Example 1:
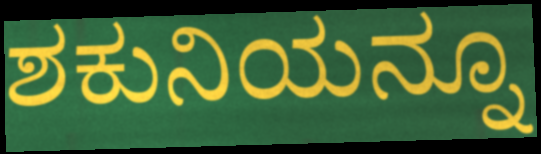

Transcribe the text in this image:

ಶಕುನಿಯನ್ನೂ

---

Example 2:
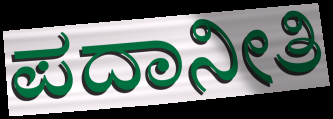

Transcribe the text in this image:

ಪದಾನೀತಿ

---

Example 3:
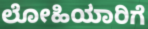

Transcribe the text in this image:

ಲೋಹಿಯಾರಿಗೆ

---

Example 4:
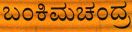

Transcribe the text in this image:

ಬಂಕಿಮಚಂದ್ರ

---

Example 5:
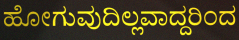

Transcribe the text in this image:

ಹೋಗುವುದಿಲ್ಲವಾದ್ದರಿಂದ